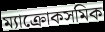
ম্যাক্রোকসমিক